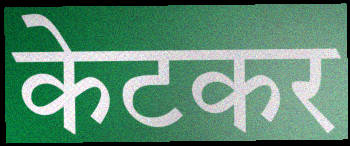
केटकर